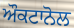
ਔਕਟਾਨੋਲ